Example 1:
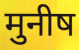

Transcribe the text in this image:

मुनीष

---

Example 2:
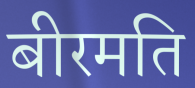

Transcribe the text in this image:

बीरमति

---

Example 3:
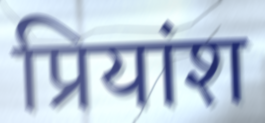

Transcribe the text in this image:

प्रियांश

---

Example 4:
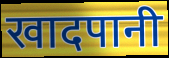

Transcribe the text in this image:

खादपानी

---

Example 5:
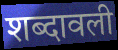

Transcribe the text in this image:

शब्दावली